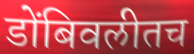
डोंबिवलीतच